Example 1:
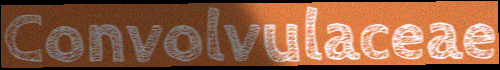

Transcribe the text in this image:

Convolvulaceae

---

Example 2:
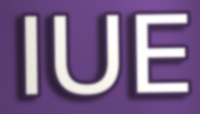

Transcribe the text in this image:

IUE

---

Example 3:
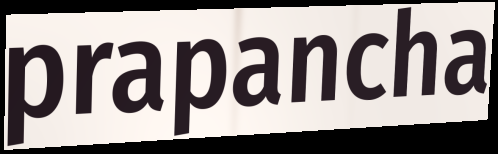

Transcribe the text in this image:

prapancha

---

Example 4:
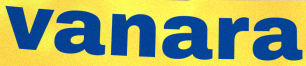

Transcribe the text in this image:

vanara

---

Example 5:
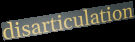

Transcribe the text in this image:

disarticulation